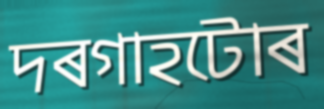
দৰগাহটোৰ